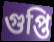
গুপ্তি